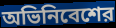
অভিনিবেশের